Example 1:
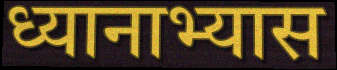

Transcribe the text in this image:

ध्यानाभ्यास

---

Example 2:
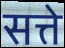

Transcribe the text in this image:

सत्ते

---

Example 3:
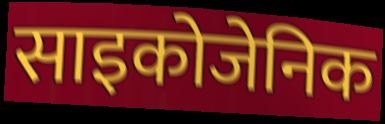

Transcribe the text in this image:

साइकोजेनिक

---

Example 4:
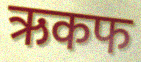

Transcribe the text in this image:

ऋकफ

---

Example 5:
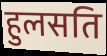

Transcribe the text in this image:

हुलसति